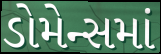
ડોમેન્સમાં